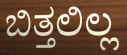
ಬಿತ್ತಲಿಲ್ಲ